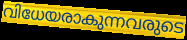
വിധേയരാകുന്നവരുടെ